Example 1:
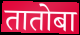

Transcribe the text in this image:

तातोबा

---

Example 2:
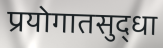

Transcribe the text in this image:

प्रयोगातसुद्धा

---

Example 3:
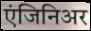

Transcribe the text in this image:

एंजिनिअर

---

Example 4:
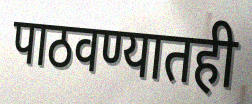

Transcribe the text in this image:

पाठवण्यातही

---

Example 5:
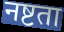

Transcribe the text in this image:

नष्टता